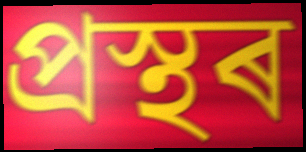
প্ৰস্থৰ